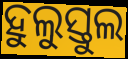
ହୁଲୁସ୍ତୁଲ